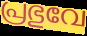
പ്രഭുവേ